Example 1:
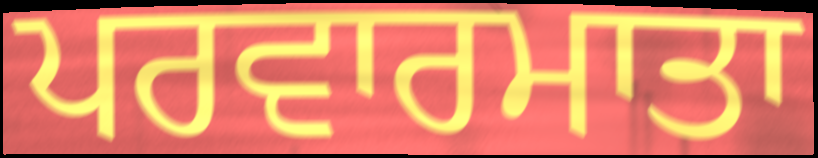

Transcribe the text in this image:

ਪਰਵਾਰਮਾਤਾ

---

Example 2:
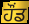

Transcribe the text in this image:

ਹੌਂਡ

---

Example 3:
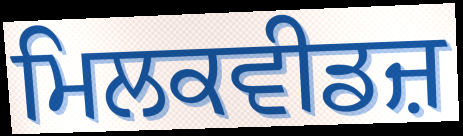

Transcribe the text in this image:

ਮਿਲਕਵੀਡਜ਼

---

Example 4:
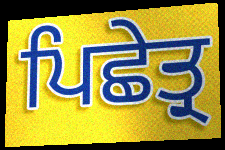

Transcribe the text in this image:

ਪਿਛੇਤ੍ਰ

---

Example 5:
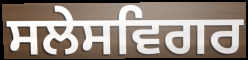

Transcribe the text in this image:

ਸਲੇਸਵਿਗਰ